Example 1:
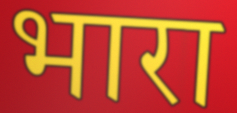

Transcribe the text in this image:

भारा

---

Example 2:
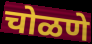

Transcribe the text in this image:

चोळणे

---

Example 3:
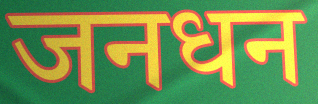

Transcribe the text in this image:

जनधन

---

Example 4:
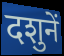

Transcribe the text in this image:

दशुनें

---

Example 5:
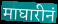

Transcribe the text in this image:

माघारीनं